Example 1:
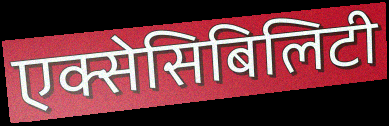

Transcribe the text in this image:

एक्सेसिबिलिटी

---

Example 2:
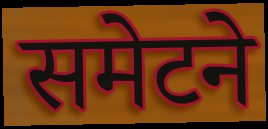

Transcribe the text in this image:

समेटने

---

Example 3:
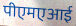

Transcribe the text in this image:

पीएमएआई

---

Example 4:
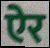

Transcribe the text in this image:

ऐर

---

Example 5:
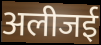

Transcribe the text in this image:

अलीजई